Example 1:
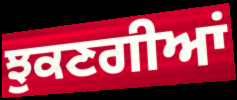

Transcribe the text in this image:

ਝੁਕਣਗੀਆਂ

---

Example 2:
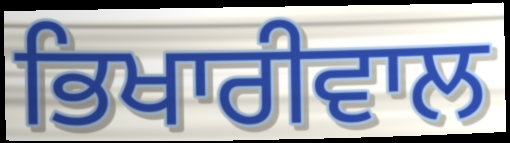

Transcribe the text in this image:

ਭਿਖਾਰੀਵਾਲ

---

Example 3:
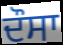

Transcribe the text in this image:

ਦੌਸਾ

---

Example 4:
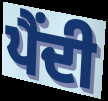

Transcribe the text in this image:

ਪੈਂਦੀ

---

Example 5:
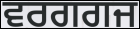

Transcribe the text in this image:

ਵਰਗਗਜ